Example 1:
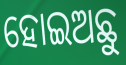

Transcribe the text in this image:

ହୋଇଅଛୁ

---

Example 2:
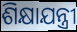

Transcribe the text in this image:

ଶିକ୍ଷାଯନ୍ତ୍ରୀ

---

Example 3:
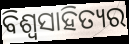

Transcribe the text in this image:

ବିଶ୍ଵସାହିତ୍ୟର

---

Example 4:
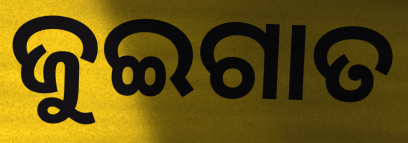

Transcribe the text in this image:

ଜୁଇଗାତ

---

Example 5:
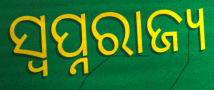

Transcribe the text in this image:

ସ୍ୱପ୍ନରାଜ୍ୟ